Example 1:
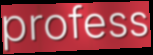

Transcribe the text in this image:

profess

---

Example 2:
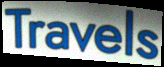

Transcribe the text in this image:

Travels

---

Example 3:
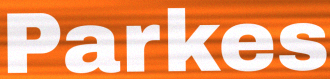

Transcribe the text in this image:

Parkes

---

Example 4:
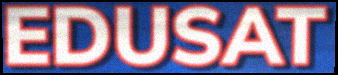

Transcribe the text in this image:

EDUSAT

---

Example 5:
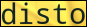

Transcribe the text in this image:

disto